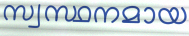
സ്വസ്ഥനമായ